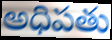
అధిపతు